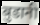
बुडानी